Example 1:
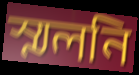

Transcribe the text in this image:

স্মলনি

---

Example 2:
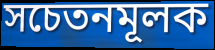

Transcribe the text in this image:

সচেতনমূলক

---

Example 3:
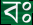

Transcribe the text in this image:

বঃ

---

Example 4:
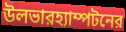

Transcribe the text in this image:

উলভারহ্যাম্পটনের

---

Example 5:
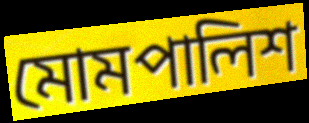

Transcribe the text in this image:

মোমপালিশ